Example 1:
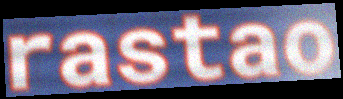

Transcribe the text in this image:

rastao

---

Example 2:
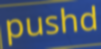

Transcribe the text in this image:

pushd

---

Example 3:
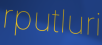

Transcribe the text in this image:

rputluri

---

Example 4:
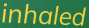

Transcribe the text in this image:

inhaled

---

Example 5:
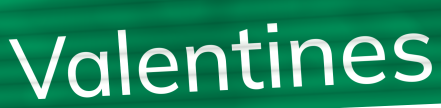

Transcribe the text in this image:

Valentines